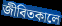
জীবিতকালে